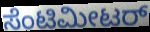
ಸೆಂಟಿಮೀಟರ್